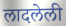
लादलेली